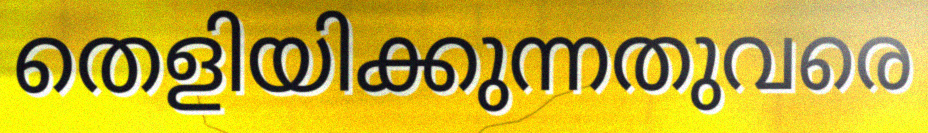
തെളിയിക്കുന്നതുവരെ